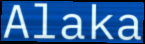
Alaka